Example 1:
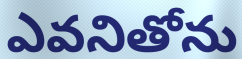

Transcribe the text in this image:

ఎవనితోను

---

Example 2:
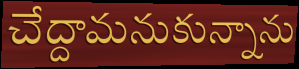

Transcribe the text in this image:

చేద్దామనుకున్నాను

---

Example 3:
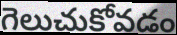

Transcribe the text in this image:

గెలుచుకోవడం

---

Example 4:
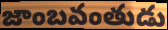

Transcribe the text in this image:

జాంబవంతుడు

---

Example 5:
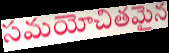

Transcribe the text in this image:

సమయోచితమైన